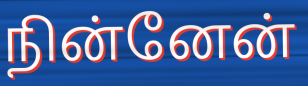
நின்னேன்